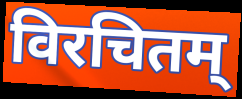
विरचितम्